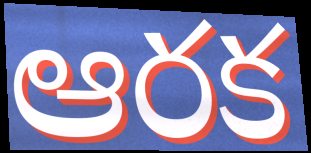
ఆరక